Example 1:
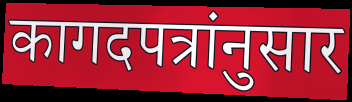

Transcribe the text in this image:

कागदपत्रांनुसार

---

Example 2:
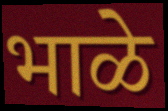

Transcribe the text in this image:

भाळे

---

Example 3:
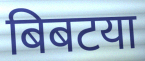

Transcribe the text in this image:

बिबटया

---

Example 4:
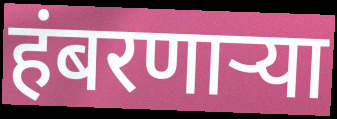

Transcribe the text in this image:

हंबरणाऱ्या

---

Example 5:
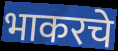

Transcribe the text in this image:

भाकरचे